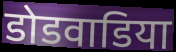
डोडवाडिया